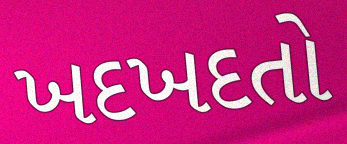
ખદખદતો